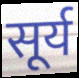
सूर्य